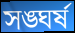
সঙ্ঘর্ষ